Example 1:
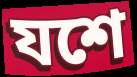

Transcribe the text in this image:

যশে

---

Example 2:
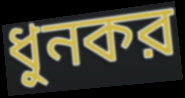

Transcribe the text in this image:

ধুনকর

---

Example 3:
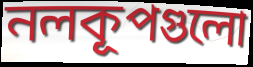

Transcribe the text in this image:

নলকূপগুলো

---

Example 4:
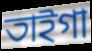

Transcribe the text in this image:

তাইগা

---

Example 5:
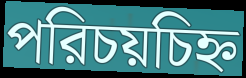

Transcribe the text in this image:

পরিচয়চিহ্ন